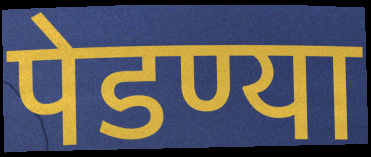
पेडण्या